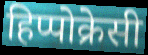
हिप्पोक्रेसी